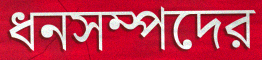
ধনসম্পদের